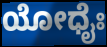
ಯೋಧೈಃ